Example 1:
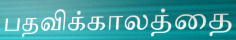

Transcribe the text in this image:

பதவிக்காலத்தை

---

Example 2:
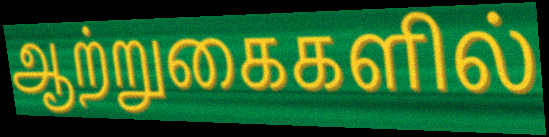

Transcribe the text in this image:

ஆற்றுகைகளில்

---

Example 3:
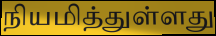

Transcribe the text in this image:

நியமித்துள்ளது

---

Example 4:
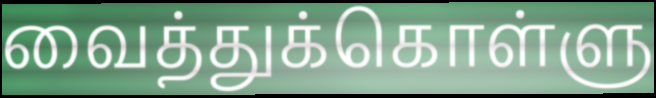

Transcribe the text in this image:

வைத்துக்கொள்ளு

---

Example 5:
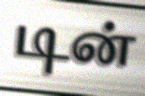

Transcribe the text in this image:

டின்